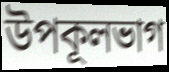
উপকূলভাগ